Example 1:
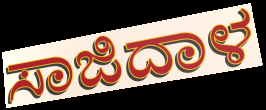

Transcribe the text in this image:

ಸಾಜಿದಾಳ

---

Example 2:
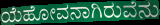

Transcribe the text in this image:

ಯೆಹೋವನಾಗಿರುವೆನು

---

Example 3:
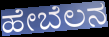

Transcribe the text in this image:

ಹೇಬೆಲನ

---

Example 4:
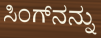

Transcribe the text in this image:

ಸಿಂಗ್‌ನನ್ನು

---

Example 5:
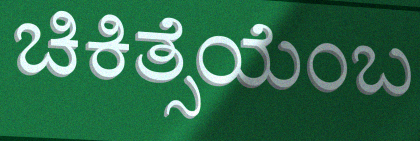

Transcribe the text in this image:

ಚಿಕಿತ್ಸೆಯೆಂಬ